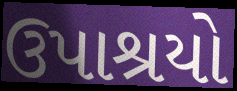
ઉપાશ્રયો